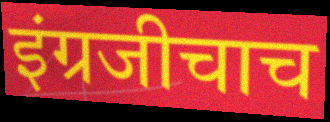
इंग्रजीचाच